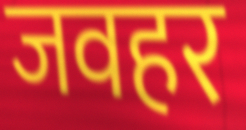
जवहर